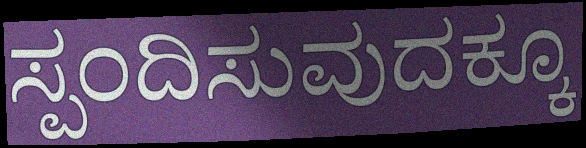
ಸ್ಪಂದಿಸುವುದಕ್ಕೂ